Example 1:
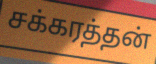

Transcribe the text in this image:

சக்கரத்தன்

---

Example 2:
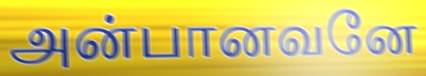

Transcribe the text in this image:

அன்பானவனே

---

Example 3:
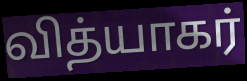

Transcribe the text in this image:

வித்யாகர்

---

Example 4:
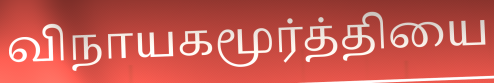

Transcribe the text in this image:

விநாயகமூர்த்தியை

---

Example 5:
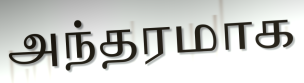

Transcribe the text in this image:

அந்தரமாக